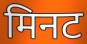
मिनट